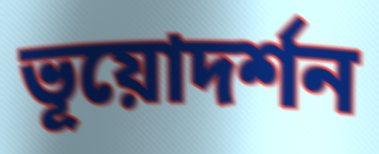
ভূয়োদর্শন